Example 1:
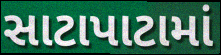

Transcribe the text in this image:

સાટાપાટામાં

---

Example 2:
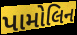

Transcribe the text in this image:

પામોલિન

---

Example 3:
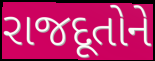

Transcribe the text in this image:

રાજદૂતોને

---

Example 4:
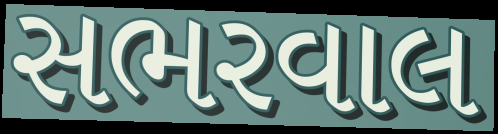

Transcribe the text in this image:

સભરવાલ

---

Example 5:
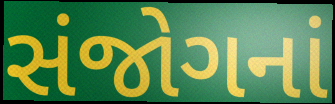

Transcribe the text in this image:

સંજોગનાં